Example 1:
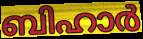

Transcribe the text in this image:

ബിഹാർ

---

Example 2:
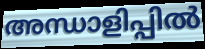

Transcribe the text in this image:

അന്ധാളിപ്പിൽ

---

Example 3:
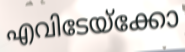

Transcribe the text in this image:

എവിടേയ്ക്കോ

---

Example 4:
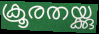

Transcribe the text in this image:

ക്രൂരതയ്ക്കു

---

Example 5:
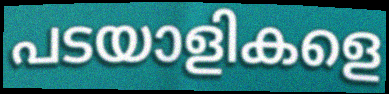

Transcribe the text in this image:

പടയാളികളെ